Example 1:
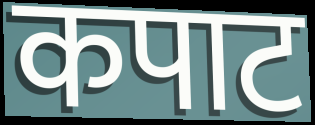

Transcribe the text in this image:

कपाट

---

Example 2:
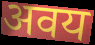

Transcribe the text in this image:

अवय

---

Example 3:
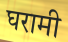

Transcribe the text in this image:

घरामी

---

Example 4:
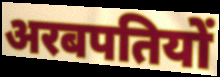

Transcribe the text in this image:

अरबपतियों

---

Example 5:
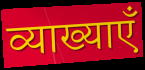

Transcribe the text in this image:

व्याख्याएँ